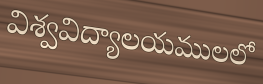
విశ్వవిద్యాలయములలో